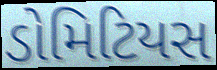
ડોમિટિયસ